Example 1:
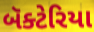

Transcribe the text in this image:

બૅક્ટેરિયા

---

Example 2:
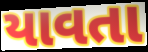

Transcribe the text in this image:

યાવતા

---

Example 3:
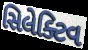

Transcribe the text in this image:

સિલેક્ટિવ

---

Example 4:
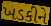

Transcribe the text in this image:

ખડકીને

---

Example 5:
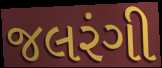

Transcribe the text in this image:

જલરંગી